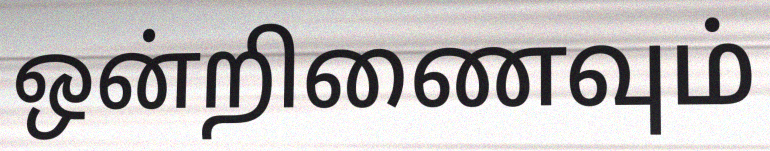
ஒன்றிணைவும்